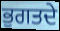
ਭੁਗਤਦੇ